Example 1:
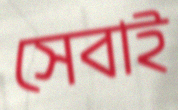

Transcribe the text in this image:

সেবাই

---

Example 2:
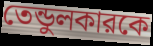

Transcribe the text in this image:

তেন্ডুলকারকে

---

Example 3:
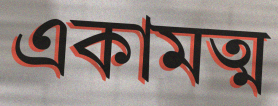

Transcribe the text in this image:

একামত্ম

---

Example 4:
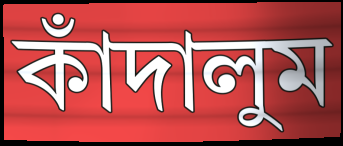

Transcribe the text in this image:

কাঁদালুম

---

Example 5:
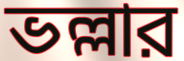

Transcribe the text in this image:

ভল্লার